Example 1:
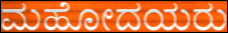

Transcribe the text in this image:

ಮಹೋದಯರು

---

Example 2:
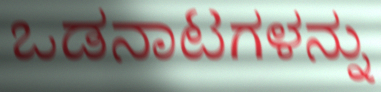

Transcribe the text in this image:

ಒಡನಾಟಗಳನ್ನು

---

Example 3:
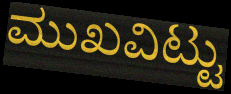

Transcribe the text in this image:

ಮುಖವಿಟ್ಟು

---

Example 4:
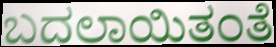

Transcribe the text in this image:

ಬದಲಾಯಿತಂತೆ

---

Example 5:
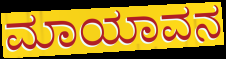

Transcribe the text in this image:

ಮಾಯಾವನ